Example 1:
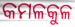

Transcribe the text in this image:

କମଳକୁଳ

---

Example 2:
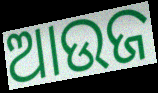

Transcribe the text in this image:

ଆଉଜ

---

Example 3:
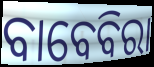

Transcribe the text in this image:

ବାବେବିରା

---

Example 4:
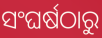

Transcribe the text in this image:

ସଂଘର୍ଷଠାରୁ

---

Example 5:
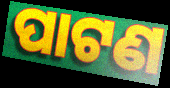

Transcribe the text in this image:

ପାଟଣ